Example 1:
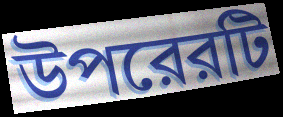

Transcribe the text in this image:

উপরেরটি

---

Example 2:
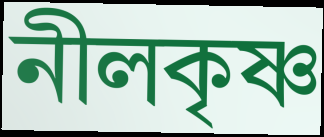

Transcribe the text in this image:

নীলকৃষ্ণ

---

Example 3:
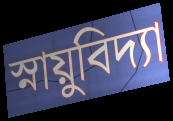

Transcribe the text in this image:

স্নায়ুবিদ্যা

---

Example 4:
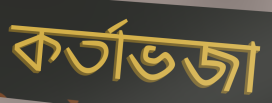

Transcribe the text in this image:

কর্তাভজা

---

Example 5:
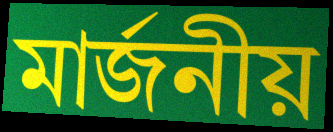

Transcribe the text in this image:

মার্জনীয়